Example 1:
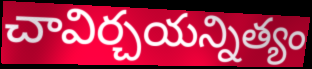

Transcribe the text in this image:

చావిర్చయన్నిత్యం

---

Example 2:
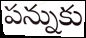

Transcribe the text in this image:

పన్నుకు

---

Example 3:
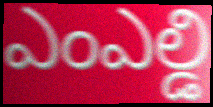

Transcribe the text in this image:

ఎంఎల్డి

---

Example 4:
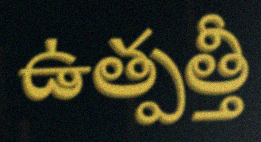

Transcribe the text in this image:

ఉత్పత్తీ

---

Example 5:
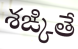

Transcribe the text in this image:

శఙ్కితే